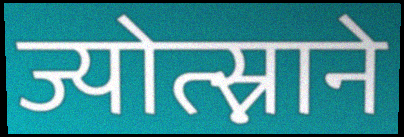
ज्योत्स्नाने